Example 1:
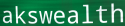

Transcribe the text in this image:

akswealth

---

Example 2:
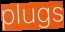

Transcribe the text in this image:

plugs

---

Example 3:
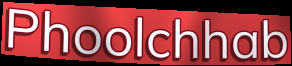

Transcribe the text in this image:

Phoolchhab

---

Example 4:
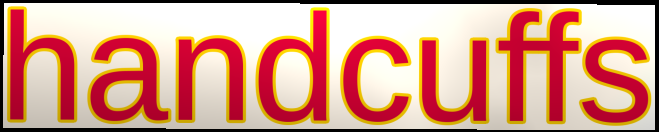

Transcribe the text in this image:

handcuffs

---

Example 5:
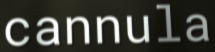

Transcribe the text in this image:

cannula